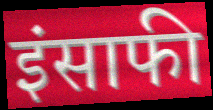
इंसाफी